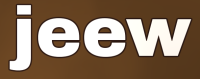
jeew